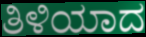
ತಿಳಿಯಾದ